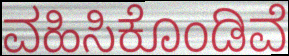
ವಹಿಸಿಕೊಂಡಿವೆ